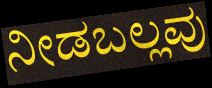
ನೀಡಬಲ್ಲವು